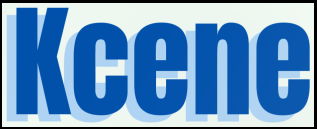
Kcene